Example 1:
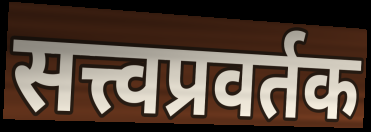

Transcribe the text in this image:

सत्त्वप्रवर्तक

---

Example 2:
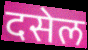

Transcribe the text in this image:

दसेल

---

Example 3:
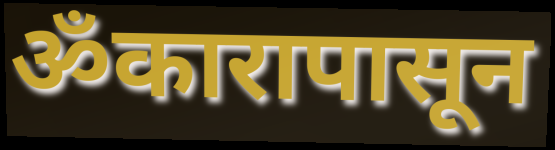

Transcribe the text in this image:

ॐकारापासून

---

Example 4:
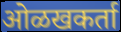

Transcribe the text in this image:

ओळखकर्ता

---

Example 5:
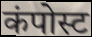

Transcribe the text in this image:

कंपोस्ट